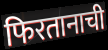
फिरतानाची